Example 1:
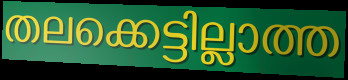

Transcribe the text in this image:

തലക്കെട്ടില്ലാത്ത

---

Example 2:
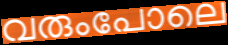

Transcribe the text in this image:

വരുംപോലെ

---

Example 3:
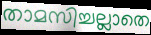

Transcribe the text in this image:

താമസിച്ചല്ലാതെ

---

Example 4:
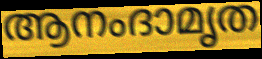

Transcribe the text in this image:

ആനംദാമൃത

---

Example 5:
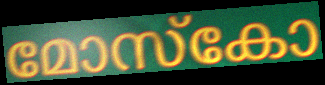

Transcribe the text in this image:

മോസ്‌കോ